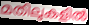
മതിലുകളിൽ